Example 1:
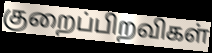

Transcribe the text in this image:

குறைப்பிறவிகள்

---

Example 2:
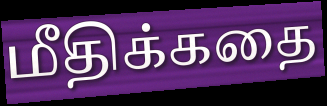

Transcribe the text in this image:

மீதிக்கதை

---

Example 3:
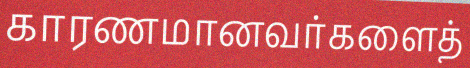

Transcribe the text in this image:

காரணமானவர்களைத்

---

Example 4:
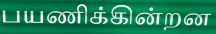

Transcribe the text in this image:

பயணிக்கின்றன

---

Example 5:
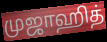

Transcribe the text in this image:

முஜாஹித்